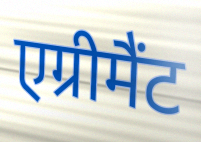
एग्रीमैंट